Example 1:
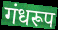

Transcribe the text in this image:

गंधरूप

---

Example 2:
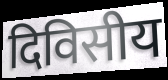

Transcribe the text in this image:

दिविसीय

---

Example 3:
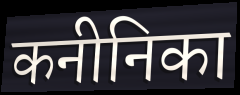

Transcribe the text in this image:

कनीनिका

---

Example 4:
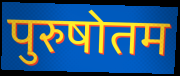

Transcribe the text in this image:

पुरुषोतम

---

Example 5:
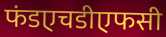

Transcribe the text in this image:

फंडएचडीएफसी